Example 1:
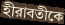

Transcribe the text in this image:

হীরাবতীকে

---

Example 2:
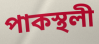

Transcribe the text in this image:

পাকস্থলী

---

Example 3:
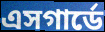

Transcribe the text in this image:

এসগার্ডে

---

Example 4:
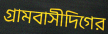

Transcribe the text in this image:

গ্রামবাসীদিগের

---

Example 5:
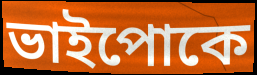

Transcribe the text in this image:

ভাইপোকে